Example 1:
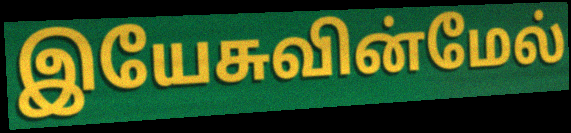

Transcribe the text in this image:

இயேசுவின்மேல்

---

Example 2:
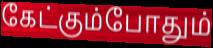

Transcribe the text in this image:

கேட்கும்போதும்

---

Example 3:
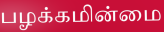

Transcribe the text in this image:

பழக்கமின்மை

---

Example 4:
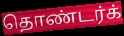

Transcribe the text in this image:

தொண்டர்க்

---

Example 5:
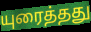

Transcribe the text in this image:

யுரைத்தது